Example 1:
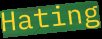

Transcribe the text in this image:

Hating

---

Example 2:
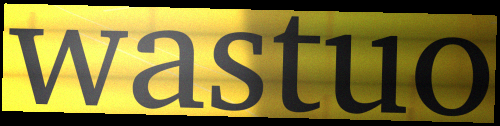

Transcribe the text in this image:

wastuo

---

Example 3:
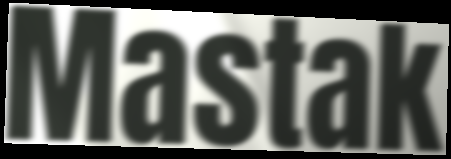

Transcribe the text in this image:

Mastak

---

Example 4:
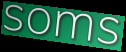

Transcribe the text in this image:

soms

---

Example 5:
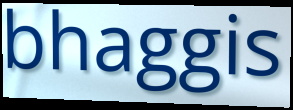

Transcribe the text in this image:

bhaggis